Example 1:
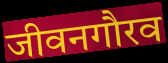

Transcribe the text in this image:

जीवनगौरव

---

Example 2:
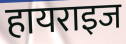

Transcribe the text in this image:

हायराइज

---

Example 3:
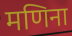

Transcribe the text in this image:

मणिना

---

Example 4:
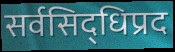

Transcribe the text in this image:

सर्वसिद्धिप्रद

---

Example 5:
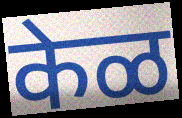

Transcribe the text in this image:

केळ